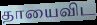
தாயைவிட